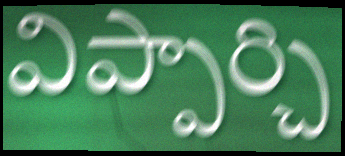
విప్పార్చి